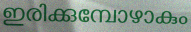
ഇരിക്കുമ്പോഴാകും